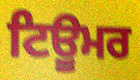
ਟਿਊਮਰ